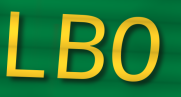
LBO